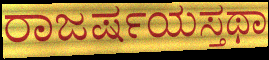
ರಾಜರ್ಷಯಸ್ತಥಾ